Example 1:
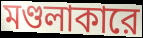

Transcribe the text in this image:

মণ্ডলাকারে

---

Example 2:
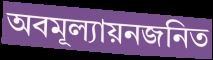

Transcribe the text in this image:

অবমূল্যায়নজনিত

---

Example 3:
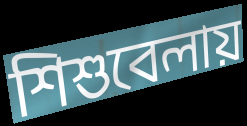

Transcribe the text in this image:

শিশুবেলায়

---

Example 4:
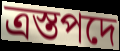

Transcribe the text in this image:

ত্রস্তপদে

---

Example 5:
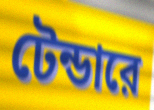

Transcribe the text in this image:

টেন্ডারে